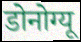
डोनोग्यू